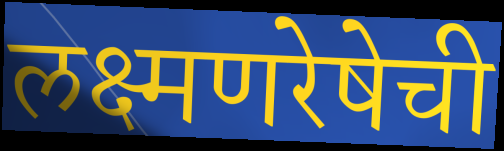
लक्ष्मणरेषेची